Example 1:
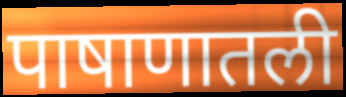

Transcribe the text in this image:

पाषाणातली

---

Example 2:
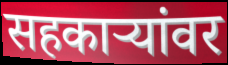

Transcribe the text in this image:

सहकार्‍यांवर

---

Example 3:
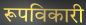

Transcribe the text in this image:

रूपविकारी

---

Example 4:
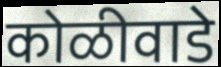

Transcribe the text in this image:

कोळीवाडे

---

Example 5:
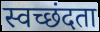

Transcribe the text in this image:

स्वच्छंदता